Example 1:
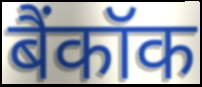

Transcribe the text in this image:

बैंकॉक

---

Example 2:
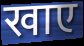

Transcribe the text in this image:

खाए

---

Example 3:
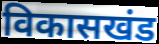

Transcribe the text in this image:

विकासखंड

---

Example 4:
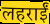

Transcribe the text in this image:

लहराईं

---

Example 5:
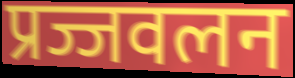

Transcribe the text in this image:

प्रज्जवलन